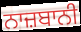
ਨਾਜ਼ਬਾਨੀ